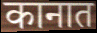
कानात